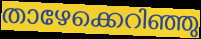
താഴേക്കെറിഞ്ഞു